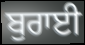
ਬੁਰਾਈ